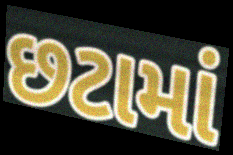
છટામાં